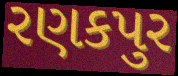
રણકપુર